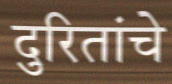
दुरितांचे